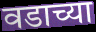
वडाच्या